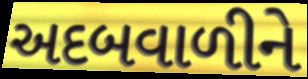
અદબવાળીને